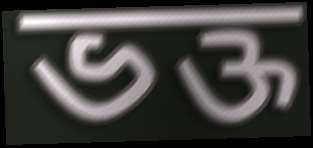
ভক্ত